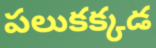
పలుకక్కడ